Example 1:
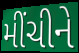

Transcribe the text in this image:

મીંચીને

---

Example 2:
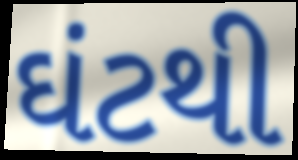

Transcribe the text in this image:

ઘંટથી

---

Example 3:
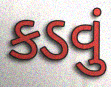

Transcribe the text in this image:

કડવું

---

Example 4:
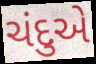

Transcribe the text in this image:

ચંદુએ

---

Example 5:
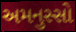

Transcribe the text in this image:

અમનુસ્સો